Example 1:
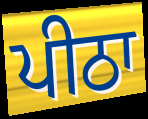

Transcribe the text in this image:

ਪੀਠਾ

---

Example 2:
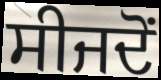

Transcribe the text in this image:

ਸੀਜਦੋਂ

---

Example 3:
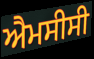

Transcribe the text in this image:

ਐਮਸੀਸੀ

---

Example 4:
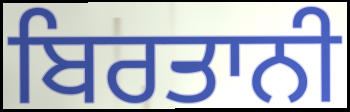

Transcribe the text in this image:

ਬਿਰਤਾਨੀ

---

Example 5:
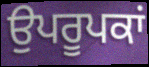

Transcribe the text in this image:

ਉਪਰੂਪਕਾਂ